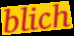
blich